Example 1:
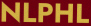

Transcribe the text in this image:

NLPHL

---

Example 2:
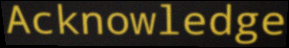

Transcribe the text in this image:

Acknowledge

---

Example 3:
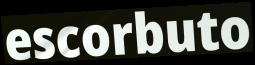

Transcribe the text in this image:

escorbuto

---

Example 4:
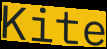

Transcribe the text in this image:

Kite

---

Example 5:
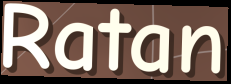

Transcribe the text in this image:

Ratan